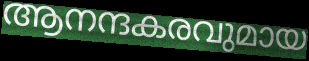
ആനന്ദകരവുമായ